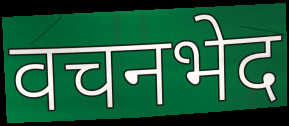
वचनभेद